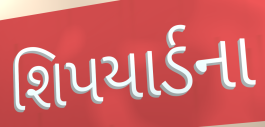
શિપયાર્ડના